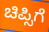
ಚಿಪ್ಸಿಗೆ